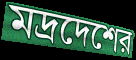
মদ্রদেশের